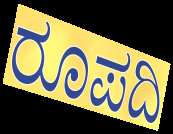
ರೂಪದಿ